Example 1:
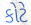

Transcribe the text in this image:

કોટે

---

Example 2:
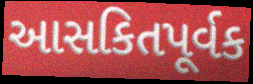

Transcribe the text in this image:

આસકિતપૂર્વક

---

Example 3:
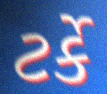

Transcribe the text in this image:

ટર્કે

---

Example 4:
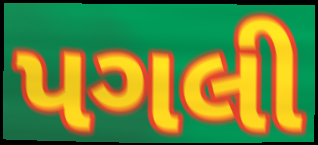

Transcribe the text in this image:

પગલી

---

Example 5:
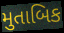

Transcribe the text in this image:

મુતાબિક